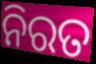
ନିରତ